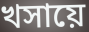
খসায়ে